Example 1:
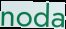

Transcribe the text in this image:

noda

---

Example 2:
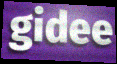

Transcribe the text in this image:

gidee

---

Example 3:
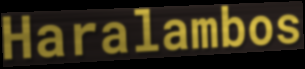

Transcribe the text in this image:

Haralambos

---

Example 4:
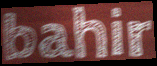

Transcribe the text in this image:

bahir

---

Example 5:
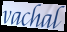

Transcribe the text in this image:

vachal